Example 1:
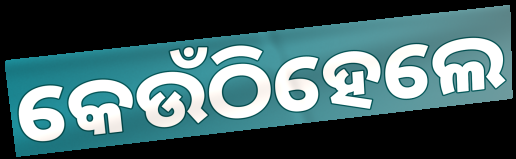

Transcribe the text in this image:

କେଉଁଠିହେଲେ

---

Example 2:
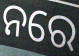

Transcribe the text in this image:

ନରେ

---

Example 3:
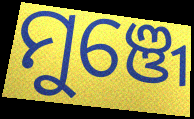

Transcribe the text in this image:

ମୁଞ୍ଜେ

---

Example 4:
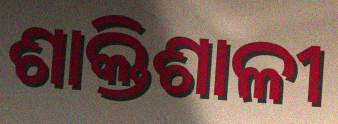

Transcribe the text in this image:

ଶାକ୍ତିଶାଳୀ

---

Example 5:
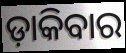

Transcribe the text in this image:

ଡ଼ାକିବାର